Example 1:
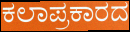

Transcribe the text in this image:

ಕಲಾಪ್ರಕಾರದ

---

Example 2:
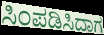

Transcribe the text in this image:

ಸಿಂಪಡಿಸಿದಾಗ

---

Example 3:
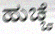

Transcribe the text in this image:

ಹುಚ್ಚೆ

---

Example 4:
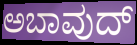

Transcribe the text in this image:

ಅಬಾವುದ್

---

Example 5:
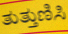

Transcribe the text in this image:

ತುತ್ತುಣಿಸಿ